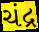
ચંદ્ર